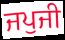
ਜਪੁਜੀ